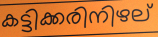
കട്ടിക്കരിനിഴല്